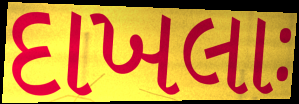
દાખલાઃ